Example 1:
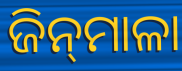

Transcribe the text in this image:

ଜିନ୍‌ମାଳା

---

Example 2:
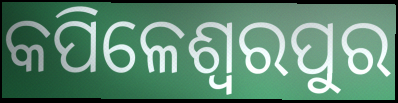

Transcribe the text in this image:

କପିଳେଶ୍ୱରପୁର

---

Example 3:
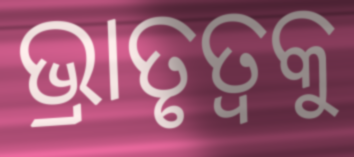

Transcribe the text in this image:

ଭ୍ରାତୃତ୍ୱକୁ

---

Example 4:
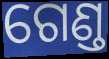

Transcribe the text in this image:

ଗେଣ୍ଡ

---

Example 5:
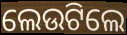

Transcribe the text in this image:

ଲେଉଟିଲେ